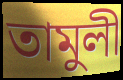
তামুলী